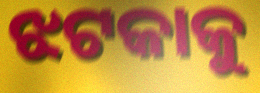
ଝଟକାକୁ